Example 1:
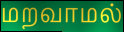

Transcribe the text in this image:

மறவாமல்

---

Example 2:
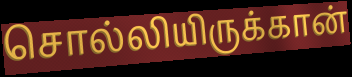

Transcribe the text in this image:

சொல்லியிருக்கான்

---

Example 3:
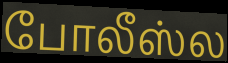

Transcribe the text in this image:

போலீஸ்ல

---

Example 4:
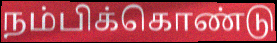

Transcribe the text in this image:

நம்பிக்கொண்டு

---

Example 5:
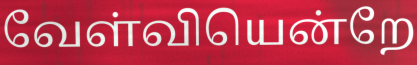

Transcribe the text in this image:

வேள்வியென்றே